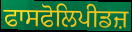
ਫਾਸਫੋਲਿਪੀਡਜ਼